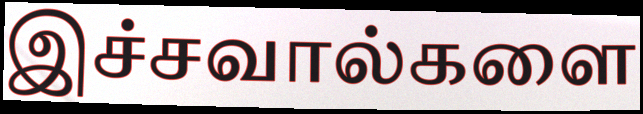
இச்சவால்களை